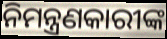
ନିମନ୍ତ୍ରଣକାରୀଙ୍କ